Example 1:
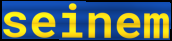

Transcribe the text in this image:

seinem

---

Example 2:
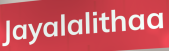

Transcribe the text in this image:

Jayalalithaa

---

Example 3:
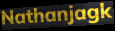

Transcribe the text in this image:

Nathanjagk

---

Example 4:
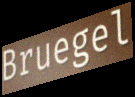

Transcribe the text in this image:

Bruegel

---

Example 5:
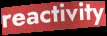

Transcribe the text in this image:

reactivity